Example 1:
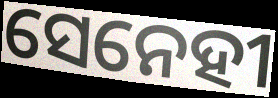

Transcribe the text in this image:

ସେନେହୀ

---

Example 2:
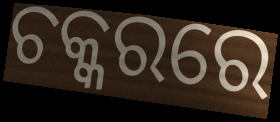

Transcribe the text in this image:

ଚକ୍କରରେ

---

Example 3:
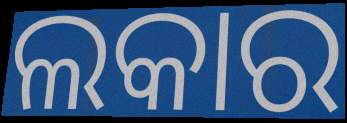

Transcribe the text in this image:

ଲକାର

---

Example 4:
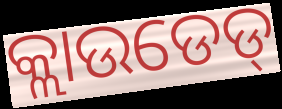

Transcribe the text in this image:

କ୍ଲାଉଡେଡ୍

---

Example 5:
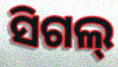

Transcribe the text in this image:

ସିଗଲ୍